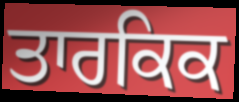
ਤਾਰਕਿਕ